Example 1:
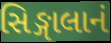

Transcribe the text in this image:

સિઙ્ગાલાનં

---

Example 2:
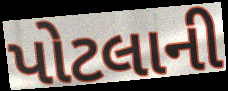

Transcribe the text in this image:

પોટલાની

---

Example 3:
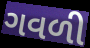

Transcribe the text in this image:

ગવળી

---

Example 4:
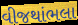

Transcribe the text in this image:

વીજથાંભલા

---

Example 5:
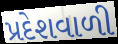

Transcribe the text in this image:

પ્રદેશવાળી